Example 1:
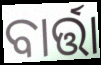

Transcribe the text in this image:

ବାର୍ତ୍ତା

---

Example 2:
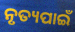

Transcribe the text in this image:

ନୃତ୍ୟପାଇଁ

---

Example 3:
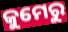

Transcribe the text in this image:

କୁମେରୁ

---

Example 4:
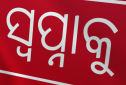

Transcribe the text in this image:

ସ୍ୱପ୍ନାକୁ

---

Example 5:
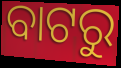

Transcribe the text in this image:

ବାଟରୁ